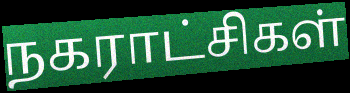
நகராட்சிகள்